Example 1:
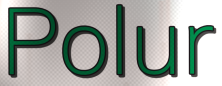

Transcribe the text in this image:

Polur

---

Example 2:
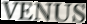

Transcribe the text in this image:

VENUS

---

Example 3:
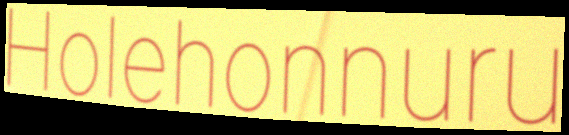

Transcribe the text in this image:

Holehonnuru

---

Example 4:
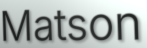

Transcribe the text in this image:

Matson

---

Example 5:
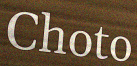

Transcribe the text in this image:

Choto